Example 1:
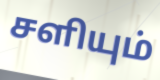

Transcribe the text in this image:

சளியும்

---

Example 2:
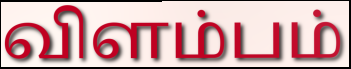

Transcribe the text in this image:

விளம்பம்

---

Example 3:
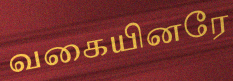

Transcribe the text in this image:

வகையினரே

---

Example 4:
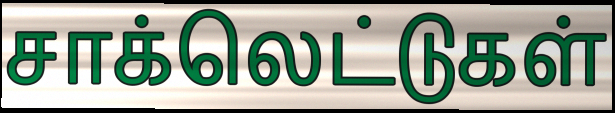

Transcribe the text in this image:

சாக்லெட்டுகள்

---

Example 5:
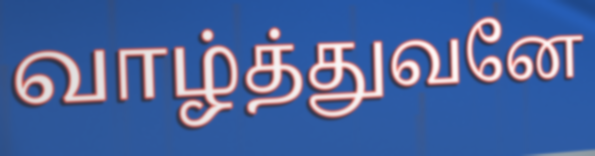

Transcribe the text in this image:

வாழ்த்துவனே